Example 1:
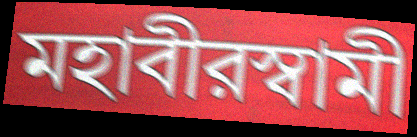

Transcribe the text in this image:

মহাবীরস্বামী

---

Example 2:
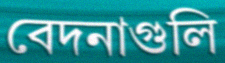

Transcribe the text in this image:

বেদনাগুলি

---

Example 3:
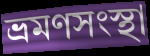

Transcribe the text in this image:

ভ্রমণসংস্থা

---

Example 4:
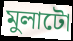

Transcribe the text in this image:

মুলাটো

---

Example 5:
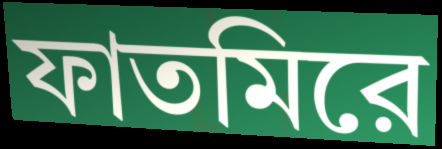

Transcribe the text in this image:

ফাতমিরে